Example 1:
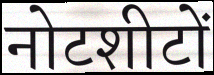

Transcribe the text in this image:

नोटशीटों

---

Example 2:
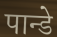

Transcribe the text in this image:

पान्डे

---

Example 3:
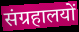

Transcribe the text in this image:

संग्रहालयों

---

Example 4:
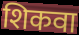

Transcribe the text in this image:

शिकवा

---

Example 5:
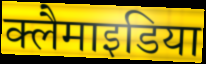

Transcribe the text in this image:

क्लैमाइडिया